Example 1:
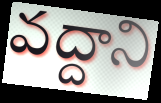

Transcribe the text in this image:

వద్దాని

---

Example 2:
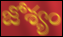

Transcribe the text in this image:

జోశ్యం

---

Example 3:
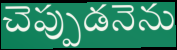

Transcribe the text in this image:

చెప్పుడనెను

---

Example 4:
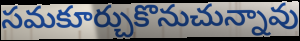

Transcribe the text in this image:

సమకూర్చుకొనుచున్నావు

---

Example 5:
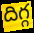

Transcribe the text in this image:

దిగ్గ